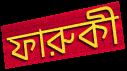
ফাৰুকী